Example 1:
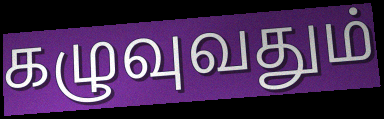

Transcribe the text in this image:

கழுவுவதும்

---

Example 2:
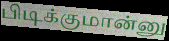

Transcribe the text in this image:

பிடிக்குமான்னு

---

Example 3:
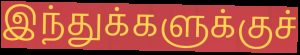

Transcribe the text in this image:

இந்துக்களுக்குச்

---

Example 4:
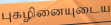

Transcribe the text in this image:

புகழினையுடைய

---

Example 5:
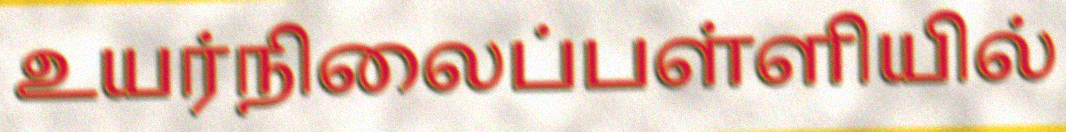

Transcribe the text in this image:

உயர்நிலைப்பள்ளியில்